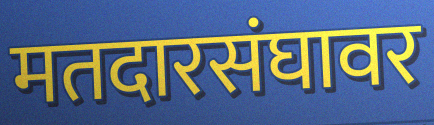
मतदारसंघावर